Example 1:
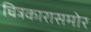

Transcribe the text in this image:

चित्रकारासमोर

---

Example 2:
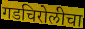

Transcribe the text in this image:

गडचिरोलीचा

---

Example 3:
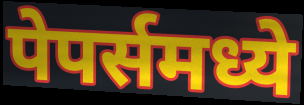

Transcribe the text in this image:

पेपर्समध्ये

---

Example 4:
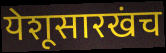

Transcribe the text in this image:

येशूसारखंच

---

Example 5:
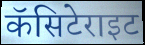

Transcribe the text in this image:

कॅसिटेराइट